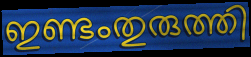
ഇണ്ടംതുരുത്തി